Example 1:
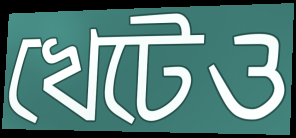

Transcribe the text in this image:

খেটেও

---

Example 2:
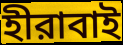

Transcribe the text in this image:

হীরাবাই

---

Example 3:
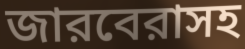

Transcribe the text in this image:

জারবেরাসহ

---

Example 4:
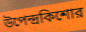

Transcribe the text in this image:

উপেন্দ্রকিশোর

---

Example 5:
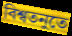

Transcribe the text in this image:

বিশ্বতনুতে